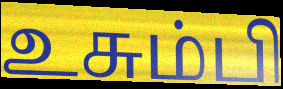
உசும்பி